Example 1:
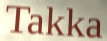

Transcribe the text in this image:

Takka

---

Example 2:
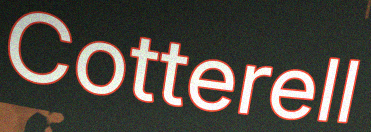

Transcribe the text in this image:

Cotterell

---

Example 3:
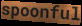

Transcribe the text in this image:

spoonful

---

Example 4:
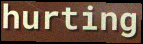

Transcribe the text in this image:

hurting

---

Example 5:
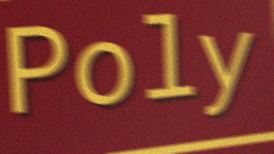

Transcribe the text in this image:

Poly